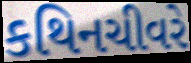
કથિનચીવરે